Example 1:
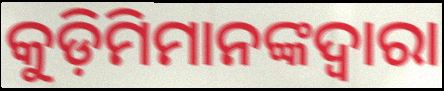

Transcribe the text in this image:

କୁଡ଼ିମିମାନଙ୍କଦ୍ୱାରା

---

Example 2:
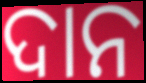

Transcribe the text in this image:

ଦାନ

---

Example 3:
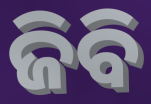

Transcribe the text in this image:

ଜିବି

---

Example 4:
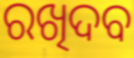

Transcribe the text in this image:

ରଖିଦବ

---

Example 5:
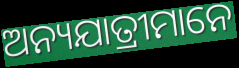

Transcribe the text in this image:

ଅନ୍ୟଯାତ୍ରୀମାନେ